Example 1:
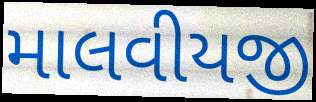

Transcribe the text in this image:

માલવીયજી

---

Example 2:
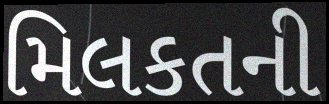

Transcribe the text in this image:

મિલકતની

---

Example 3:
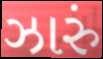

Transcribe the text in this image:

ઝારું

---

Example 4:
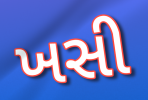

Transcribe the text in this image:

ખસી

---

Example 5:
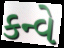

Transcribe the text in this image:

કન્વે